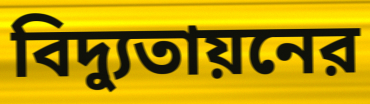
বিদ্যুতায়নের